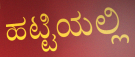
ಹಟ್ಟಿಯಲ್ಲಿ